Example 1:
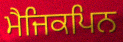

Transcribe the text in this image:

ਮੈਜਿਕਪਿਨ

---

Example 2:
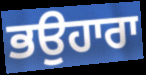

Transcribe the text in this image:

ਭਉਹਾਰਾ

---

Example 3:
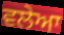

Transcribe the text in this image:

ਵਲੇਆ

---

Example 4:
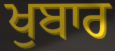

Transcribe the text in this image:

ਖੁਬਾਰ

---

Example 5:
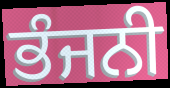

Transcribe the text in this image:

ਭੰਜਨੀ